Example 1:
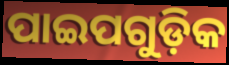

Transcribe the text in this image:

ପାଇପଗୁଡ଼ିକ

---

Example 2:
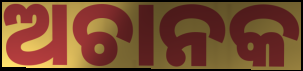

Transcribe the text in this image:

ଅଚାନକ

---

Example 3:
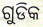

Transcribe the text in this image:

ଗୁଡିକ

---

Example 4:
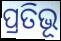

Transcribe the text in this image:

ପ୍ରତିଭୂ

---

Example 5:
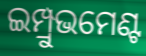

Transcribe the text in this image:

ଇମ୍ପ୍ରୁଭମେଣ୍ଟ